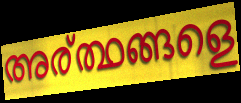
അര്ത്ഥങ്ങളെ